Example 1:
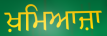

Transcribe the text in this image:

ਖ਼ਮਿਆਜ਼ਾ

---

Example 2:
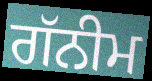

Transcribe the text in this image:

ਗੱਨੀਮ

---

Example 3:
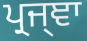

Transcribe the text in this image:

ਪ੍ਰਜ੍ਞਾ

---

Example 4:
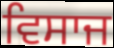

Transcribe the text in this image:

ਵਿਸਾਜ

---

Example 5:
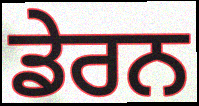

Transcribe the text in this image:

ਡੇਰਨ